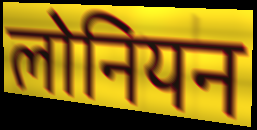
लोनियन